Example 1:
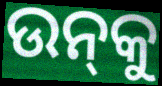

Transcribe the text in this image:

ଉନ୍‌କୁ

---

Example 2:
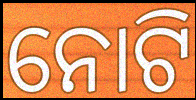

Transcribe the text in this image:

ନୋଟି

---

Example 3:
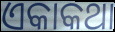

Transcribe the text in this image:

ଏକାକଥା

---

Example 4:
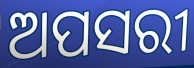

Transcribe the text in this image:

ଅପସରୀ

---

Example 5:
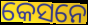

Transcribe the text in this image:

କେସନେ